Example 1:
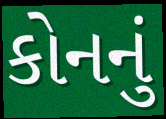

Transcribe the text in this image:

કોનનું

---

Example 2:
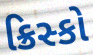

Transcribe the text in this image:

ક્રિસ્કો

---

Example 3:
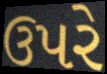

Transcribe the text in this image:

ઉપરે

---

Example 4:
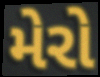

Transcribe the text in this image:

મેરો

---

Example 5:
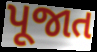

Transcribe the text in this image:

પૂજાત